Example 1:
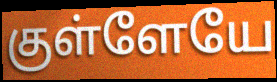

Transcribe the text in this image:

குள்ளேயே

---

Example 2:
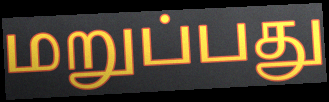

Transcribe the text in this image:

மறுப்பது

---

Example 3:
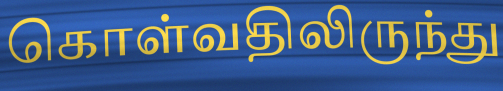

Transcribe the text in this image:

கொள்வதிலிருந்து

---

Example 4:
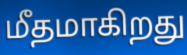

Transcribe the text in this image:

மீதமாகிறது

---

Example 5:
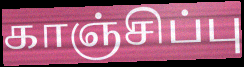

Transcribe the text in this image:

காஞ்சிப்பு